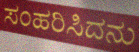
ಸಂಹರಿಸಿದನು